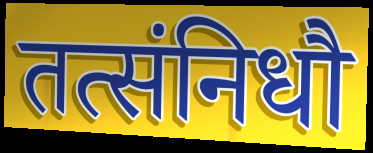
तत्संनिधौ